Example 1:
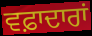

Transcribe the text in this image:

ਵਫ਼ਾਦਾਰਾਂ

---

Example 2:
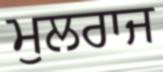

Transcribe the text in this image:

ਮੁਲਰਾਜ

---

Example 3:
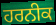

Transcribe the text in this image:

ਹਰਨੀਕ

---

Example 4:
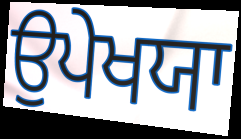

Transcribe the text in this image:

ਉਪੇਖਯਾ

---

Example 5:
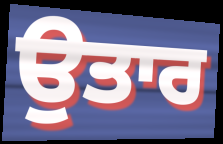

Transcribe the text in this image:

ਉਤਾਰ